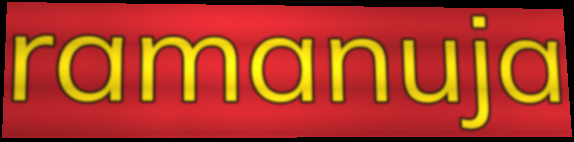
ramanuja